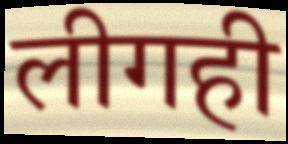
लीगही